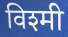
विश्मी